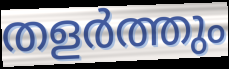
തളർത്തും